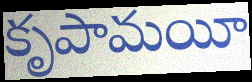
కృపామయీ